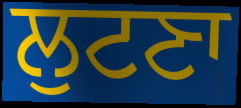
ਲੁਟਣਾ